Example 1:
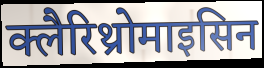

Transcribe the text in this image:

क्लैरिथ्रोमाइसिन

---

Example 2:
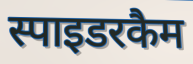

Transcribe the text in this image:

स्पाइडरकैम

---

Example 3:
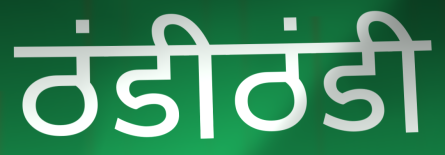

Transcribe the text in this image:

ठंडीठंडी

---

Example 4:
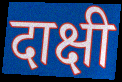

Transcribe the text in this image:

दाक्षी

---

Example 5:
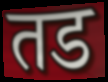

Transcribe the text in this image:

तड